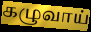
கழுவாய்